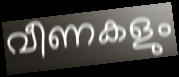
വീണകളും